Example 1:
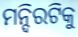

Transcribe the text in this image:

ମନ୍ଦିରଟିକୁ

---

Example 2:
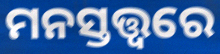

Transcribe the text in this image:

ମନସ୍ତତ୍ତ୍ଵରେ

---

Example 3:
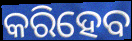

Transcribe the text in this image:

କରିହେବ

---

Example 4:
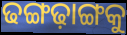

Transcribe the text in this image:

ଢଙ୍ଗଢ଼ାଙ୍ଗକୁ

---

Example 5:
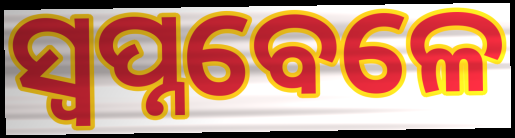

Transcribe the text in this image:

ସ୍ଵପ୍ନବେଳେ